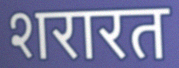
शरारत